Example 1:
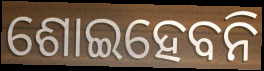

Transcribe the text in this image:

ଶୋଇହେବନି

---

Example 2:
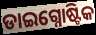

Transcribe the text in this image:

ଡାଇଗ୍ନୋଷ୍ଟିକ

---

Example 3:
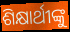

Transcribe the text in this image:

ଶିକ୍ଷାର୍ଥୀଙ୍କୁ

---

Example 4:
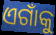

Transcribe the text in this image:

ଏଗାଁକୁ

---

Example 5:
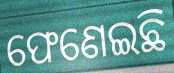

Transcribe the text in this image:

ଫେଣେଇଛି